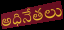
అధినేతలు